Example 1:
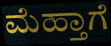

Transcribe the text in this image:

ಮೆಹ್ತಾಗೆ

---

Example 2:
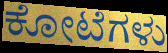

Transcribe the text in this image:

ಕೋಟೆಗಳು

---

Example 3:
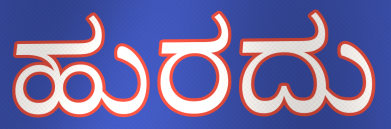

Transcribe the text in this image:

ಹುರದು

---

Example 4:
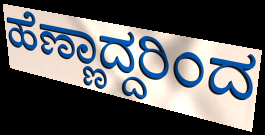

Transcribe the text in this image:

ಹೆಣ್ಣಾದ್ದರಿಂದ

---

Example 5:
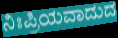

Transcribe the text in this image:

ನಿಃಪ್ರಿಯವಾದುದ